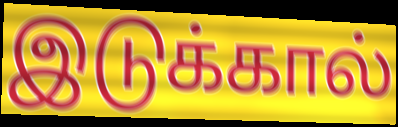
இடுக்கால்